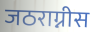
जठराग्नीस